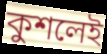
কুশলেই